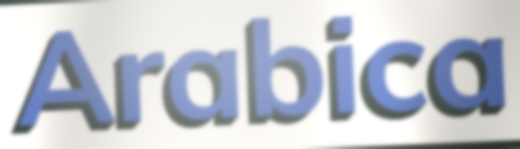
Arabica